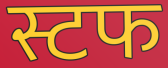
स्टफ